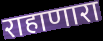
राहाणारा